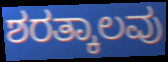
ಶರತ್ಕಾಲವು